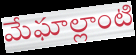
మేఘాల్లాంటి